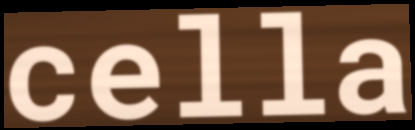
cella